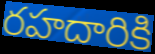
రహదారికి